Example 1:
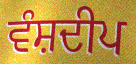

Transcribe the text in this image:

ਵੰਸ਼ਦੀਪ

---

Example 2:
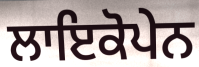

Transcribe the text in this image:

ਲਾਇਕੋਪੇਨ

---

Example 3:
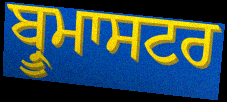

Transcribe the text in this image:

ਬ੍ਰੂਮਾਸਟਰ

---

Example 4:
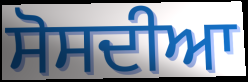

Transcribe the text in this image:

ਸੋਸਦੀਆ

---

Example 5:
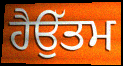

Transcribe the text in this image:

ਹੈਉੱਤਮ